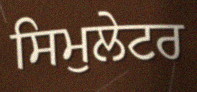
ਸਿਮੁਲੇਟਰ